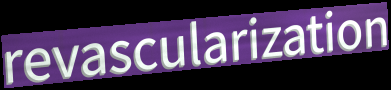
revascularization